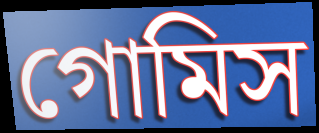
গোমিস